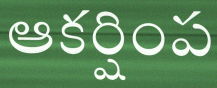
ఆకర్షింప